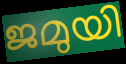
ജമുയി